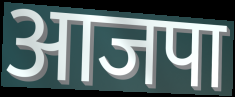
आजपा